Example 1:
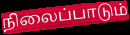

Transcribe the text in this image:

நிலைப்பாடும்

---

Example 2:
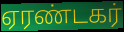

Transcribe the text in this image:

ஏரண்டகர்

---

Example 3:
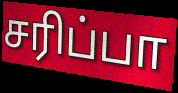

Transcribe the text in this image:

சரிப்பா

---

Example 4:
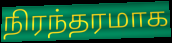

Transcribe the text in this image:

நிரந்தரமாக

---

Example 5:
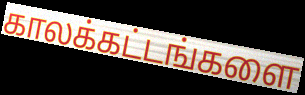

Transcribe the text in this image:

காலக்கட்டங்களை